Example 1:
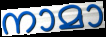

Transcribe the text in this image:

നാമാ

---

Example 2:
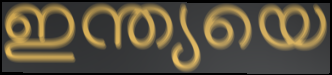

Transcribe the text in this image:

ഇന്ത്യയെ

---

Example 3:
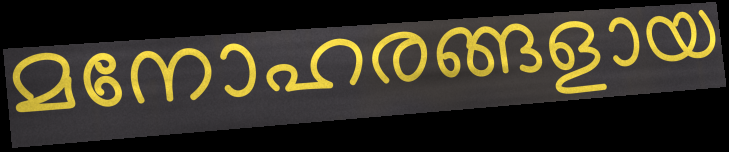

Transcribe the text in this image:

മനോഹരങ്ങളായ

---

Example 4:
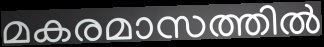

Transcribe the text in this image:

മകരമാസത്തിൽ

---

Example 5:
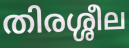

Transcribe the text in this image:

തിരശ്ശീല